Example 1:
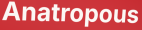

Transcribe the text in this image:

Anatropous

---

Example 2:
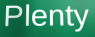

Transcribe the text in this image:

Plenty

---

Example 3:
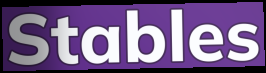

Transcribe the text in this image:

Stables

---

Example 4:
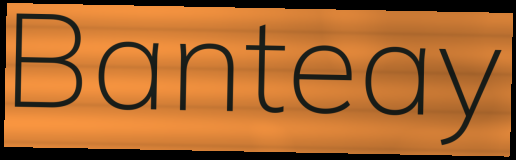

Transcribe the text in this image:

Banteay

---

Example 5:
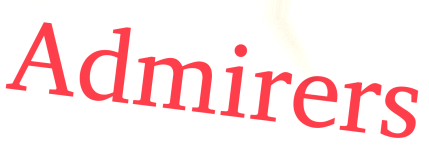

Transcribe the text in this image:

Admirers